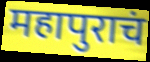
महापुराचं